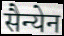
सैन्येन